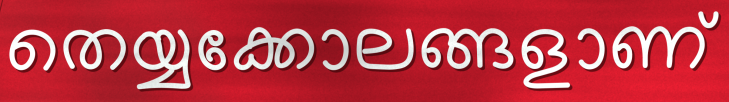
തെയ്യക്കോലങ്ങളാണ്